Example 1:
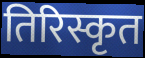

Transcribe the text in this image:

तिरिस्कृत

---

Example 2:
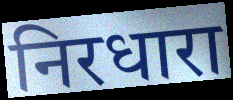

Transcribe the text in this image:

निरधारा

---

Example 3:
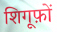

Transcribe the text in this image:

शिगूफ़ों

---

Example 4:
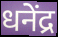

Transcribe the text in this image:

धनेंद्र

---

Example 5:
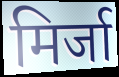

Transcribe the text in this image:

मिर्जा